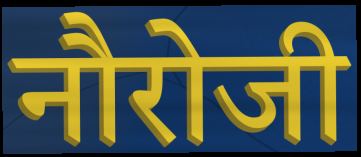
नौरोजी